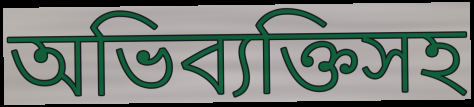
অভিব্যক্তিসহ